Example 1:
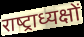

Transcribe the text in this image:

राष्ट्राध्यक्षों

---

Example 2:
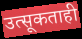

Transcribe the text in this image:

उत्सूकताही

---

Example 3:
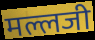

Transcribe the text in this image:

मल्लजी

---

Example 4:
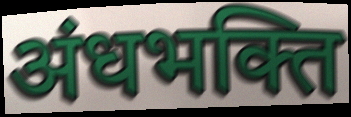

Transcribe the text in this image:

अंधभक्ति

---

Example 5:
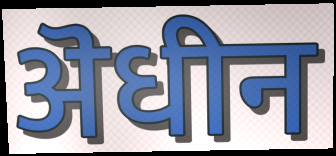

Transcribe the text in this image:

ऄधीन